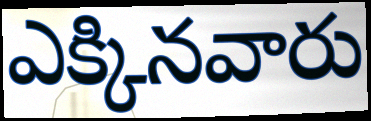
ఎక్కినవారు